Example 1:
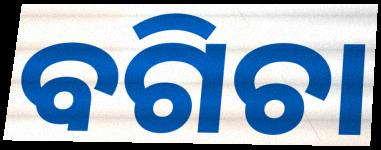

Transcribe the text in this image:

ବଗିଚା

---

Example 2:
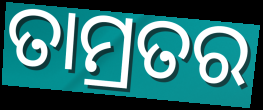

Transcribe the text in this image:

ତାମ୍ରତର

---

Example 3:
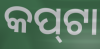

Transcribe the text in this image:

କପ୍‍ଟା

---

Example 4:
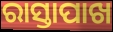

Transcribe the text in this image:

ରାସ୍ତାପାଖ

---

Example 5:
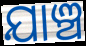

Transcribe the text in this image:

ଯାଞ୍ଚ